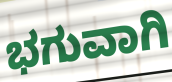
ಭಗುವಾಗಿ